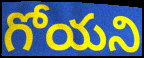
గోయని